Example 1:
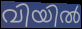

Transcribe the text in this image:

വിയിൽ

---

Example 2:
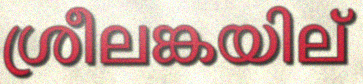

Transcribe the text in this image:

ശ്രീലങ്കയില്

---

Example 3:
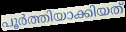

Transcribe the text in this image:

പൂർത്തിയാക്കിയത്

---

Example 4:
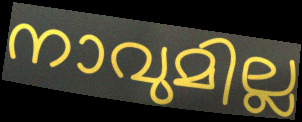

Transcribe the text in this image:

നാവുമില്ല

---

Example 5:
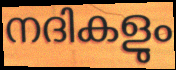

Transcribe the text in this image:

നദികളും